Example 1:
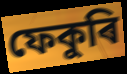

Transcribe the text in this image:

ফেকুৰি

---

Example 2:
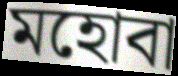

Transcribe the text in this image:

মহোবা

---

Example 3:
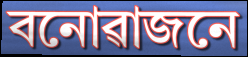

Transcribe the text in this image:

বনোৱাজনে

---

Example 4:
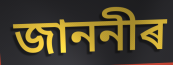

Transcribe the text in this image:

জাননীৰ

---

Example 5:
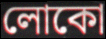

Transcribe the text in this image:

লোকো